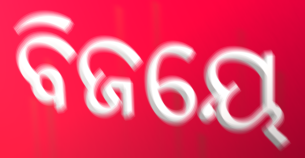
ବିଜୟେ